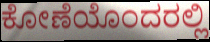
ಕೋಣೆಯೊಂದರಲ್ಲಿ